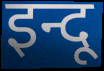
इन्दू